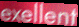
exellent